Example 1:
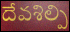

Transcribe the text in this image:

దేవశిల్పి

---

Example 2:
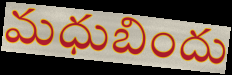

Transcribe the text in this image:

మధుబిందు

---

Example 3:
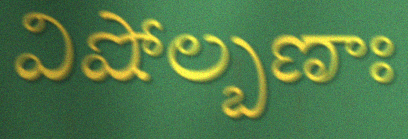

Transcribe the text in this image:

విషోల్బణాః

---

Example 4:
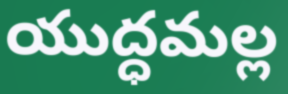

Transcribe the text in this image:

యుద్ధమల్ల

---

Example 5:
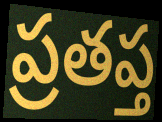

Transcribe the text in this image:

ప్రతప్త